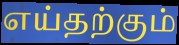
எய்தற்கும்